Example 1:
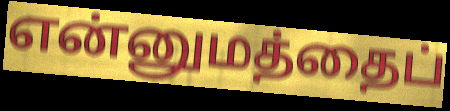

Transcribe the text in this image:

என்னுமத்தைப்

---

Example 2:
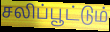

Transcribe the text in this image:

சலிப்பூட்டும்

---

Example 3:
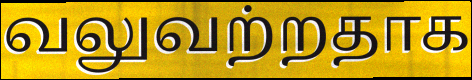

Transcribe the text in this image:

வலுவற்றதாக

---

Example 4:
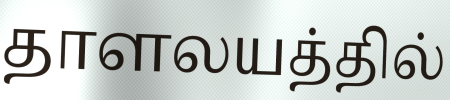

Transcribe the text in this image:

தாளலயத்தில்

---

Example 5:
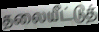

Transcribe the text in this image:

தலையீட்டுத்